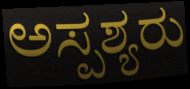
ಅಸ್ಪಶ್ಯರು